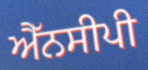
ਐੱਨਸੀਪੀ